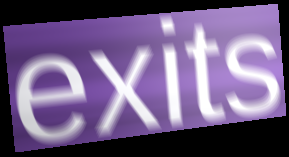
exits